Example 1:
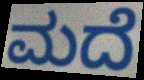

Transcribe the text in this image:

ಮದೆ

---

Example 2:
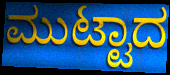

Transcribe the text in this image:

ಮುಟ್ಟಾದ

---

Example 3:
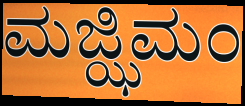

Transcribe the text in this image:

ಮಜ್ಝಿಮಂ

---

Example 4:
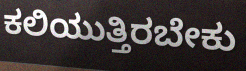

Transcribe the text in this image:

ಕಲಿಯುತ್ತಿರಬೇಕು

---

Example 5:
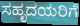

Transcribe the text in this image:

ಸಹೃದಯರಿಗೆ